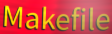
Makefile